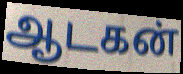
ஆடகன்